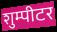
शुम्पीटर